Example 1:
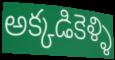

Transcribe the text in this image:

అక్కడికెళ్ళి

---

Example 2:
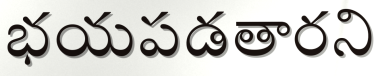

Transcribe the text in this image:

భయపడతారని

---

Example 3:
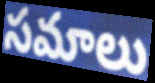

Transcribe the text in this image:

సమాలు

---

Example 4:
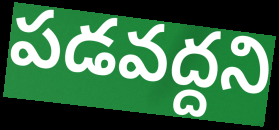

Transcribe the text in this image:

పడవద్దని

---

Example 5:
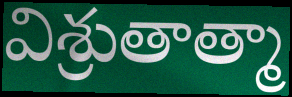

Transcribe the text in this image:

విశ్రుతాత్మా